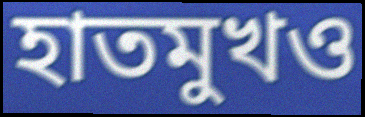
হাতমুখও